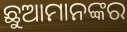
ଛୁଆମାନଙ୍କର